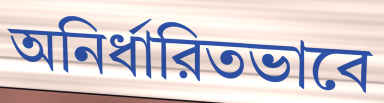
অনির্ধারিতভাবে